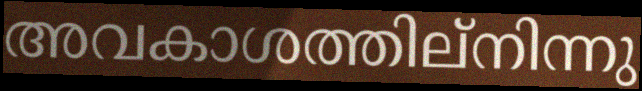
അവകാശത്തില്നിന്നു